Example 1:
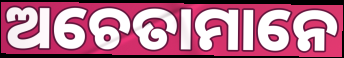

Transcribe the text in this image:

ଅଚେତାମାନେ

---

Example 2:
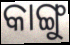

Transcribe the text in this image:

କାଙ୍ଗୁ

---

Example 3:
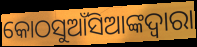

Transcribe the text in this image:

କୋଠସୁଆଁସିଆଙ୍କଦ୍ବାରା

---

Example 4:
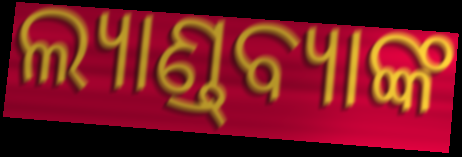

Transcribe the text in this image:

ଲ୍ୟାଣ୍ଡ୍‌ବ୍ୟାଙ୍କ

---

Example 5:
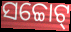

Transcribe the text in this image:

ସଚ୍ଚୋଟ୍